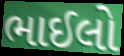
ભાઈલો